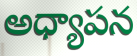
అధ్యాపన